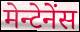
मेन्टेनेंस